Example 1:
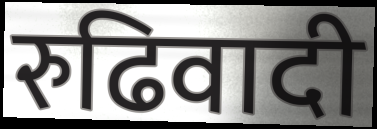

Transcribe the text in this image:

रुढिवादी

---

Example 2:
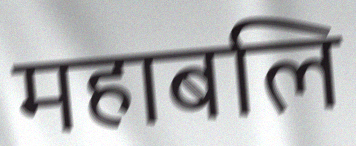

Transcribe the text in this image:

महाबलि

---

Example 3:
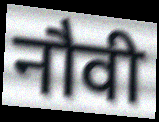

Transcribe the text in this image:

नौवी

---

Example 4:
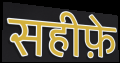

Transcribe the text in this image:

सहीफ़े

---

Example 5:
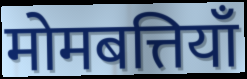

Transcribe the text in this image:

मोमबत्तियाँ